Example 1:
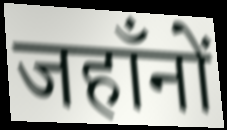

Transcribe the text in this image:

जहाँनों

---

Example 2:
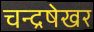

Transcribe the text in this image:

चन्द्रषेखर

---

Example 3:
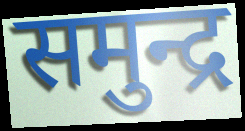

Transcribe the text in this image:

समुन्द्र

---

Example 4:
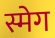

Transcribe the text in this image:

स्मेग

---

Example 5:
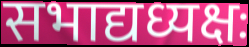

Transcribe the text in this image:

सभाद्यध्यक्षः